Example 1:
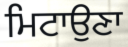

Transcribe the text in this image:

ਮਿਟਾਉਣਾ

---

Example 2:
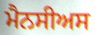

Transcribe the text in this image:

ਮੈਨਸੀਅਸ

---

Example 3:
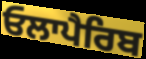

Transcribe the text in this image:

ਓਲਾਪੈਰਿਬ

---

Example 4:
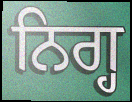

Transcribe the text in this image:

ਨਿਗ੍ਹ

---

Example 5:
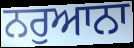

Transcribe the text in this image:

ਨਰੁਆਨਾ